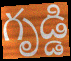
గృడ్డి